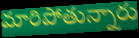
మారిపోతున్నారు